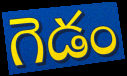
గెడం